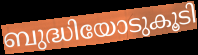
ബുദ്ധിയോടുകൂടി